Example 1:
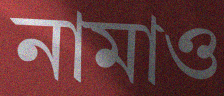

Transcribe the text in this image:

নামাও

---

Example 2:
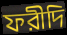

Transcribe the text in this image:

ফরীদি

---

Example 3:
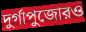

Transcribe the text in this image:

দুর্গাপুজোরও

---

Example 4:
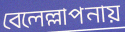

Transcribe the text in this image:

বেলেল্লাপনায়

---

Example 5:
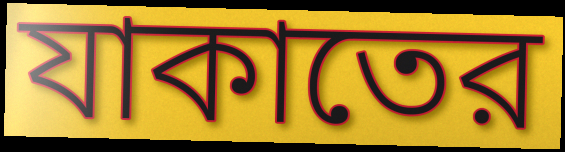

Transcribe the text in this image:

যাকাতের